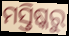
ମସ୍ତିଷ୍କରୁ